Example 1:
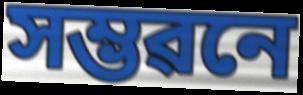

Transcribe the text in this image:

সম্ভৱনে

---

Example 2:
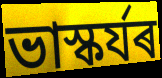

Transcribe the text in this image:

ভাস্কৰ্যৰ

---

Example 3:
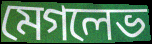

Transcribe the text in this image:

মেগলেভ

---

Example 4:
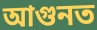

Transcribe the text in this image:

আগুনত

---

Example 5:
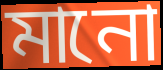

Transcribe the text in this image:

মানো